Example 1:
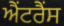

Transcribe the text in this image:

ਐਂਟਰੈਂਸ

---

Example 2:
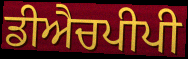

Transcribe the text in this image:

ਡੀਐਚਪੀਪੀ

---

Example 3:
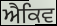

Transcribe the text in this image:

ਐਕਿਵ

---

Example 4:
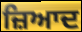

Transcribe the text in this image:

ਜ਼ਿਆਦ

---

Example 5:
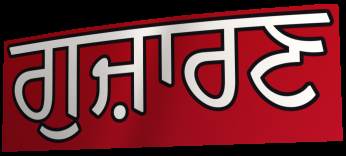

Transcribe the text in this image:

ਗੁਜ਼ਾਰਣ